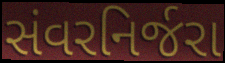
સંવરનિર્જરા